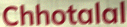
Chhotalal